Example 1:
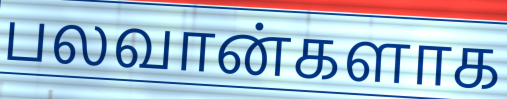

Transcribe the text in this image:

பலவான்களாக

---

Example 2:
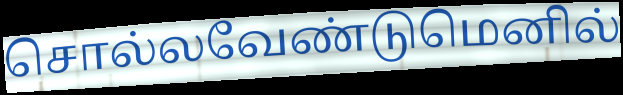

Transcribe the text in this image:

சொல்லவேண்டுமெனில்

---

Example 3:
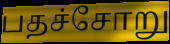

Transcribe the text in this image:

பதச்சோறு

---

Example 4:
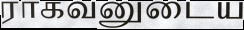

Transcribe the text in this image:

ராகவனுடைய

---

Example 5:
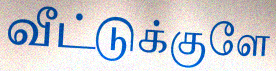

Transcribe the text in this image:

வீட்டுக்குளே